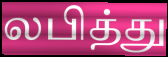
லபித்து